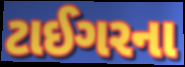
ટાઈગરના